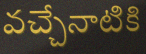
వచ్చేనాటికి